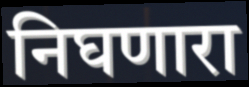
निघणारा